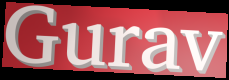
Gurav